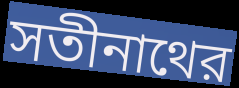
সতীনাথের